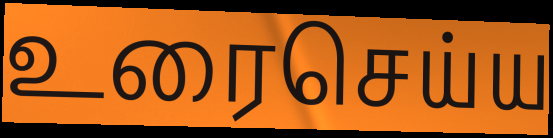
உரைசெய்ய